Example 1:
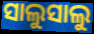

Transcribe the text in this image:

ସାଲୁସାଲୁ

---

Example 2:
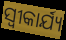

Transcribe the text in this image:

ସ୍ୱୀକାର୍ଯ୍ୟ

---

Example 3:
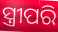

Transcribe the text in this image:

ସ୍ତ୍ରୀପରି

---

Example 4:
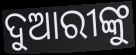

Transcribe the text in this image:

ଦୁଆରୀଙ୍କୁ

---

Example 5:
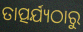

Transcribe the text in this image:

ତାତ୍ପର୍ଯ୍ୟଠାରୁ